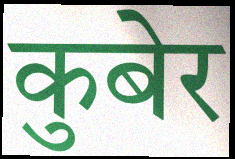
कुबेर